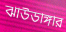
ঝাউডাঙ্গার